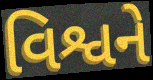
વિશ્વને